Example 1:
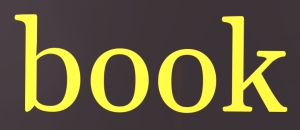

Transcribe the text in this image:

book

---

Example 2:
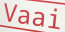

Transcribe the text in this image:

Vaai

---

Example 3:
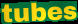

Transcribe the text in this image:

tubes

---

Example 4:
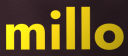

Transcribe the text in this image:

millo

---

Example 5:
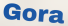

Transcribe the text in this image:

Gora